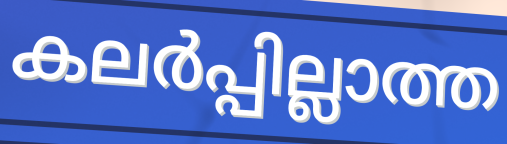
കലർപ്പില്ലാത്ത